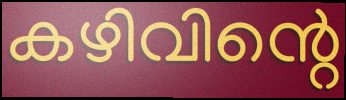
കഴിവിന്റെ